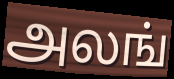
அலங்